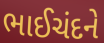
ભાઈચંદને